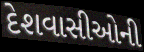
દેશવાસીઓની